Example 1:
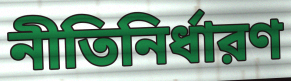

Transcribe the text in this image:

নীতিনির্ধারণ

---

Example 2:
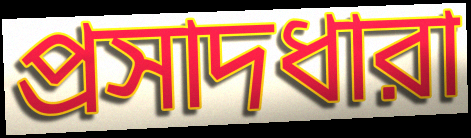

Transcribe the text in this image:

প্রসাদধারা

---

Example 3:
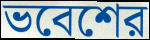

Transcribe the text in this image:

ভবেশের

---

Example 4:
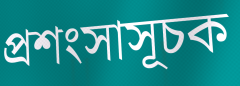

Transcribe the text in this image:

প্রশংসাসূচক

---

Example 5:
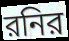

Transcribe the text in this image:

রনির